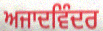
ਅਜਾਦਵਿੰਦਰ